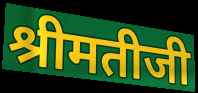
श्रीमतीजी